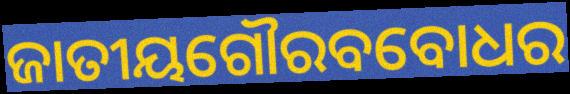
ଜାତୀୟଗୌରବବୋଧର